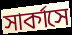
সার্কাসে